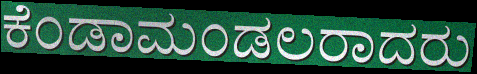
ಕೆಂಡಾಮಂಡಲರಾದರು